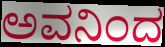
ಅವನಿಂದ